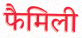
फैमिली